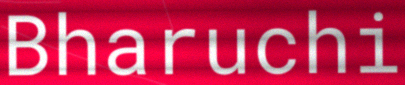
Bharuchi